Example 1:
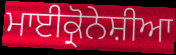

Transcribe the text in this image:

ਮਾਈਕ੍ਰੋਨੇਸ਼ੀਆ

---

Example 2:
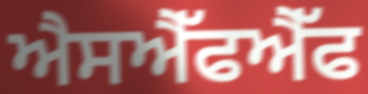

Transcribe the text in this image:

ਐਸਐੱਫਐੱਫ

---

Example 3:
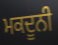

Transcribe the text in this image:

ਮਕਦੂਨੀ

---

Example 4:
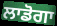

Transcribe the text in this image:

ਲਾਡੋਗਾ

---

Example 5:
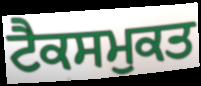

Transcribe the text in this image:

ਟੈਕਸਮੁਕਤ